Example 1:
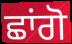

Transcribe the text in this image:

ਛਾਂਗੋ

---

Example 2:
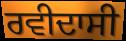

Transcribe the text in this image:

ਰਵੀਦਾਸੀ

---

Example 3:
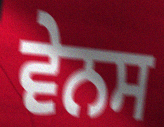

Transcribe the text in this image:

ਵੇਨਸ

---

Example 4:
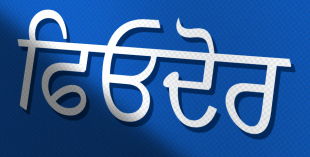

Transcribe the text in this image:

ਫਿਓਦੋਰ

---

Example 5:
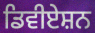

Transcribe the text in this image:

ਡਿਵੀਏਸ਼ਨ